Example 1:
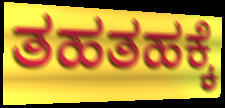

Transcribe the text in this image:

ತಹತಹಕ್ಕೆ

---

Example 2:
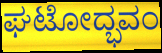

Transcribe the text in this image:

ಘಟೋದ್ಭವಂ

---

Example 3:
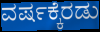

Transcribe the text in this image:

ವರ್ಷಕ್ಕೆರಡು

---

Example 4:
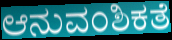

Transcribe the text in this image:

ಆನುವಂಶಿಕತೆ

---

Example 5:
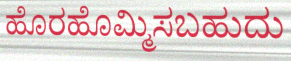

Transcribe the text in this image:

ಹೊರಹೊಮ್ಮಿಸಬಹುದು